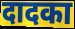
दादका